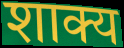
शाक्य